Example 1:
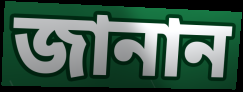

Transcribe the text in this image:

জানান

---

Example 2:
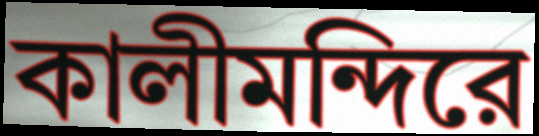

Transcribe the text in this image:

কালীমন্দিরে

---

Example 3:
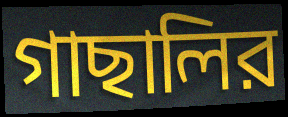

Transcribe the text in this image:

গাছালির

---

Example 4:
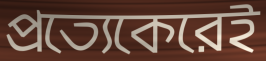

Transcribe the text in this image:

প্রত্যেকেরেই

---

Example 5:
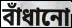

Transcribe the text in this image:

বাঁধানো